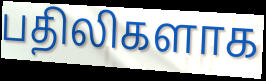
பதிலிகளாக